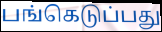
பங்கெடுப்பது